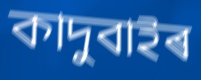
কাদুবাইৰ